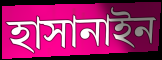
হাসানাইন